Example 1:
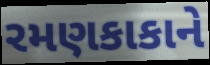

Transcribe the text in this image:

રમણકાકાને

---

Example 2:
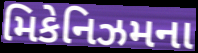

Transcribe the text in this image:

મિકેનિઝમના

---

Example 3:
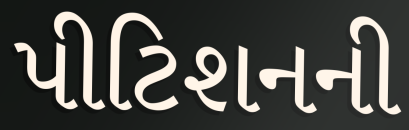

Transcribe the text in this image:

પીટિશનની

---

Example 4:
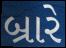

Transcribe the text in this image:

બ્રારે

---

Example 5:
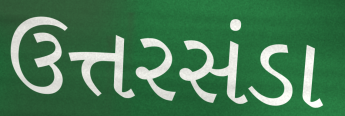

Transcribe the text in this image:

ઉત્તરસંડા